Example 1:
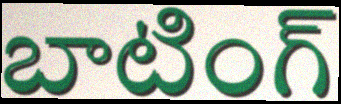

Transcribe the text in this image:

బాటింగ్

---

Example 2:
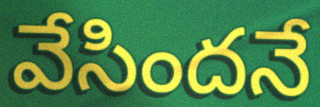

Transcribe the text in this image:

వేసిందనే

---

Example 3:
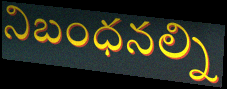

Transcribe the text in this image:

నిబంధనల్ని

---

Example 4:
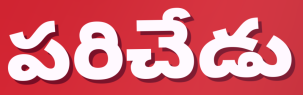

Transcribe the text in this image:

పరిచేడు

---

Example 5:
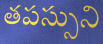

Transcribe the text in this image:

తపస్సుని